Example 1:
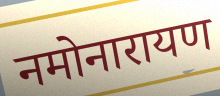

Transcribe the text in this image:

नमोनारायण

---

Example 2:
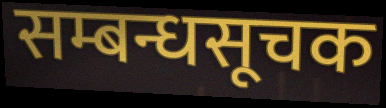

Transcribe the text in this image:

सम्बन्धसूचक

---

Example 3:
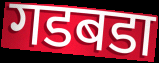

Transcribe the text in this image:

गडबडा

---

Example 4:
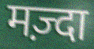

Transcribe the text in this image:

मज़्दा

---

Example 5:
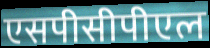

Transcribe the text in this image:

एसपीसीपीएल